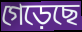
গেড়েছে